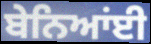
ਬੇਨਿਆਂਈ